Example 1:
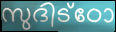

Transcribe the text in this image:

സുദിട്ഠോ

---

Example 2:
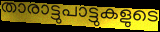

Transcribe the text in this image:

താരാട്ടുപാട്ടുകളുടെ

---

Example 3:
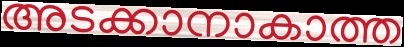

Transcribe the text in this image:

അടക്കാനാകാത്ത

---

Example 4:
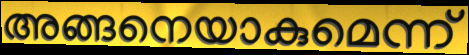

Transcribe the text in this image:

അങ്ങനെയാകുമെന്ന്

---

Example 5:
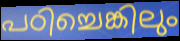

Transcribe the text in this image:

പഠിച്ചെങ്കിലും